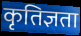
कृतिज्ञता